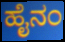
ಹೈನಂ